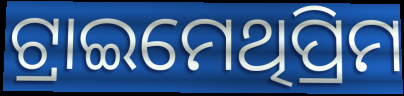
ଟ୍ରାଇମେଥିପ୍ରିମ